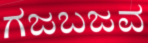
ಗಜಬಜವ